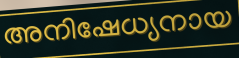
അനിഷേധ്യനായ